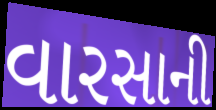
વારસાની